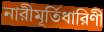
নারীমূর্তিধারিণী